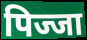
पिज्जा